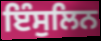
ਇੰਸੁਲਿਨ